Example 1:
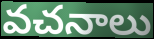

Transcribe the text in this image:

వచనాలు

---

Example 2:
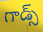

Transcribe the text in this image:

గాడ్స్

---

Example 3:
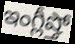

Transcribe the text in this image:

ఇంగ్లీష్తో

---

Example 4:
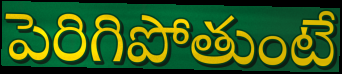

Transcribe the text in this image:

పెరిగిపోతుంటే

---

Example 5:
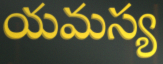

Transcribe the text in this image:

యమస్య